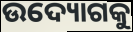
ଉଦ୍ୟୋଗକୁ